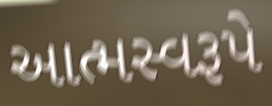
આત્મસ્વરૂપે